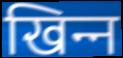
खिन्‍न